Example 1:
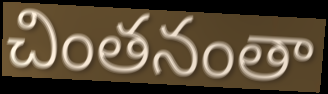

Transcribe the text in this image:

చింతనంతా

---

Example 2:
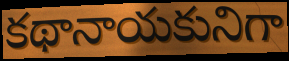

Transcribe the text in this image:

కథానాయకునిగా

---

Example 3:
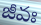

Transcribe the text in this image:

జీవః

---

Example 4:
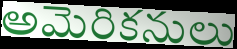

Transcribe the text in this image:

అమెరికనులు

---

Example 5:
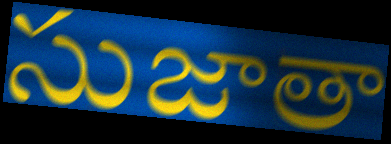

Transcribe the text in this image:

సుజాతా